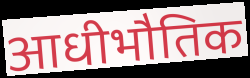
आधीभौतिक